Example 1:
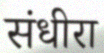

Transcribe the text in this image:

संधीरा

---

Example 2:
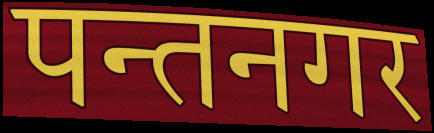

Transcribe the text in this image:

पन्तनगर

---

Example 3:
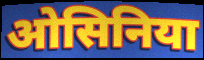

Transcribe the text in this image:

ओसिनिया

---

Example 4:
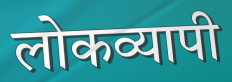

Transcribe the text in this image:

लोकव्यापी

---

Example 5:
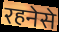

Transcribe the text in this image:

रहनेसे